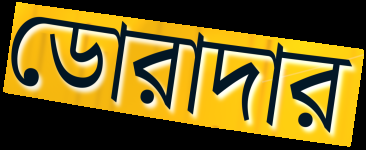
ডোরাদার